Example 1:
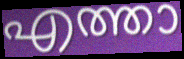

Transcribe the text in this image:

എത്താ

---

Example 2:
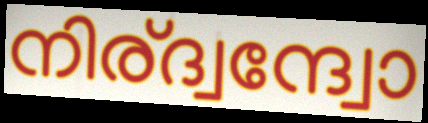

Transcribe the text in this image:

നിര്ദ്വന്ദ്വോ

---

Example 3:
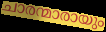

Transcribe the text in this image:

ചാരന്മാരായും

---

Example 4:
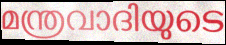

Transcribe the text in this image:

മന്ത്രവാദിയുടെ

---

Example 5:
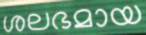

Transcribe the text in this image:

ശലഭമായ